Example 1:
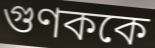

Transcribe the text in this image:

গুণককে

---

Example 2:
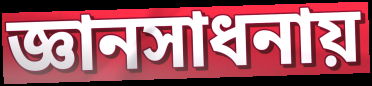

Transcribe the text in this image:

জ্ঞানসাধনায়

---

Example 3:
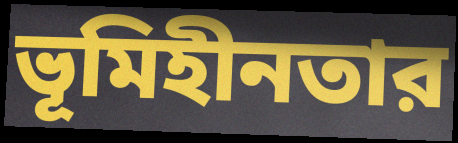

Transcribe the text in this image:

ভূমিহীনতার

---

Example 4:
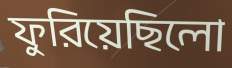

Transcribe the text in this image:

ফুরিয়েছিলো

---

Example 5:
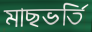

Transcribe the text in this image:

মাছভর্তি